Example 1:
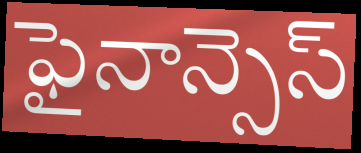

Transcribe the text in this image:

ఫైనాన్సెస్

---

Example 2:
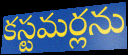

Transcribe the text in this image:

కస్టమర్లను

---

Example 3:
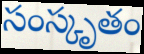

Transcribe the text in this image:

సంస్కృతం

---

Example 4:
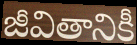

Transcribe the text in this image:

జీవితానికీ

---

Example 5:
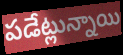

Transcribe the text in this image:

పడేట్లున్నాయి